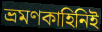
ভ্রমণকাহিনিই